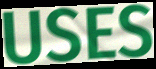
USES